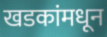
खडकांमधून